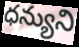
ధన్యుని